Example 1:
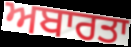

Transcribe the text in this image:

ਅਬਾਰਤਾ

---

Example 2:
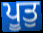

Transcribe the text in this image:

ਪੂਤੁ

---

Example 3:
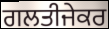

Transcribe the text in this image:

ਗਲਤੀਜੇਕਰ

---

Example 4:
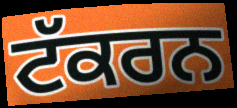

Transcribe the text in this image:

ਟੱਕਰਨ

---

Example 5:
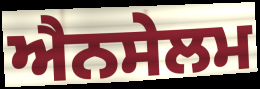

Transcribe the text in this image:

ਐਨਸੇਲਮ